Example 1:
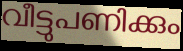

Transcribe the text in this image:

വീട്ടുപണിക്കും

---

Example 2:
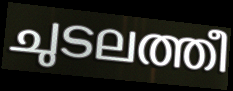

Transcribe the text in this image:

ചുടലത്തീ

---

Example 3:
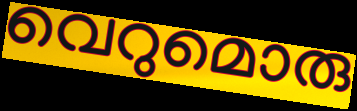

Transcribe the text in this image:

വെറുമൊരു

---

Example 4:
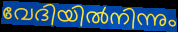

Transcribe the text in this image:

വേദിയിൽനിന്നും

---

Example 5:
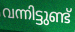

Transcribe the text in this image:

വന്നിട്ടുണ്ട്